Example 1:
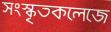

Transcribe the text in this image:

সংস্কৃতকলেজে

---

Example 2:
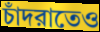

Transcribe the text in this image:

চাঁদরাতেও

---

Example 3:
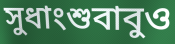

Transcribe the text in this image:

সুধাংশুবাবুও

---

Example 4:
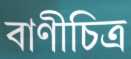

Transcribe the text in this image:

বাণীচিত্র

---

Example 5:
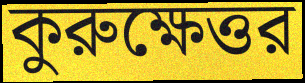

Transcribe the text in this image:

কুরুক্ষেত্তর